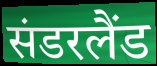
संडरलैंड